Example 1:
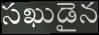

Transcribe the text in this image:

సఖుడైన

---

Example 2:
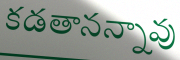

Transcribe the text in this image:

కడతానన్నావు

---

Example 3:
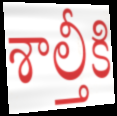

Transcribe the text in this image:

శాల్తీకి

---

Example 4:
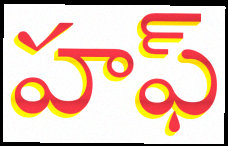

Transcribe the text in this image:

హఫ్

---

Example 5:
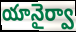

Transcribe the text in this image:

యానైర్వా